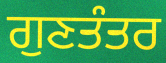
ਗੁਣਤੰਤਰ